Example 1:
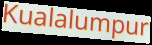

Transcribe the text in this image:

Kualalumpur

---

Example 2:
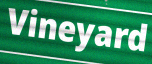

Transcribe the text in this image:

Vineyard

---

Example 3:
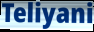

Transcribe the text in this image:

Teliyani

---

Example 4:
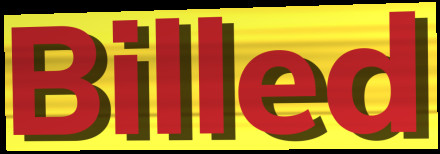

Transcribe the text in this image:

Billed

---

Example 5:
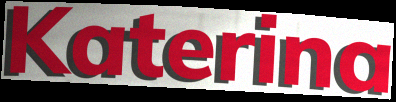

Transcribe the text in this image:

Katerina